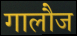
गालौज